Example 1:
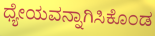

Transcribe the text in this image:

ಧ್ಯೇಯವನ್ನಾಗಿಸಿಕೊಂಡ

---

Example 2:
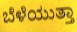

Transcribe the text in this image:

ಬೆಳೆಯುತ್ತಾ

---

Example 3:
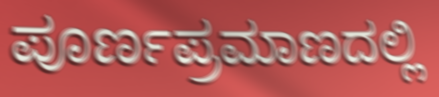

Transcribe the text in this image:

ಪೂರ್ಣಪ್ರಮಾಣದಲ್ಲಿ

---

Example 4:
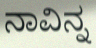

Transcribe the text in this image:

ನಾವಿನ್ನ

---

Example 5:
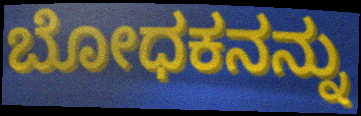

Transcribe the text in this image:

ಬೋಧಕನನ್ನು